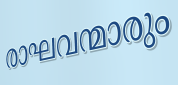
രാഘവന്മാരും